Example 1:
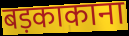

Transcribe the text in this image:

बड़काकाना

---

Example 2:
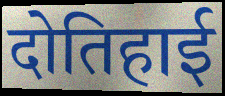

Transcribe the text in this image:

दोतिहाई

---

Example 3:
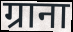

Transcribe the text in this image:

ग्राना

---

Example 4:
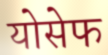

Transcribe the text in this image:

योसेफ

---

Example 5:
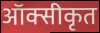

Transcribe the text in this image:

ऑक्सीकृत